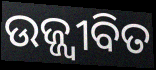
ଉଜ୍ଜ୍ୱୀବିତ